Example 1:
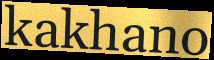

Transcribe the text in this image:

kakhano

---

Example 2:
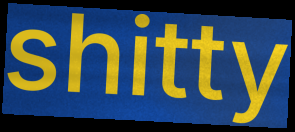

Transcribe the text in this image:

shitty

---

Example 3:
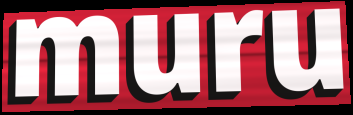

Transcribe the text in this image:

muru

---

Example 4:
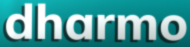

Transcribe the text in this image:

dharmo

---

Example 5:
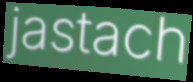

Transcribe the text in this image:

jastach